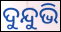
ଦୁନ୍ଦୁଭି